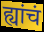
ह्यांचं